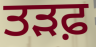
ਤੜਫ਼